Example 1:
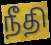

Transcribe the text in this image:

நீதி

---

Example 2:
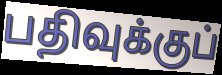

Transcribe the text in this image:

பதிவுக்குப்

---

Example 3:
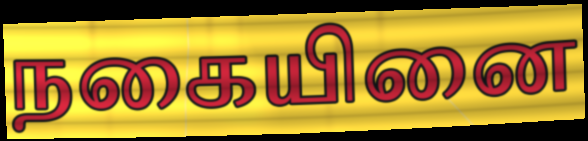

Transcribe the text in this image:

நகையினை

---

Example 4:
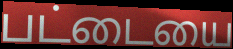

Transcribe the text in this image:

பட்டையை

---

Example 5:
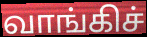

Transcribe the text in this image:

வாங்கிச்